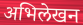
अभिलेखन